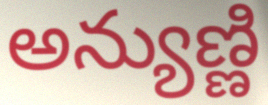
అన్యుణ్ణి